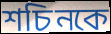
শচিনকে